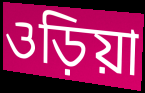
ওড়িয়া